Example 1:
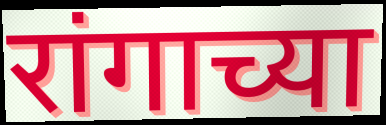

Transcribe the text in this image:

रांगाच्या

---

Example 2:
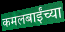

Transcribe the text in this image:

कमलबाईंच्या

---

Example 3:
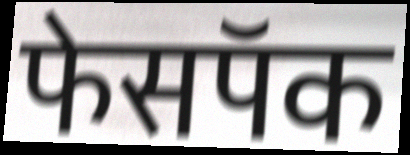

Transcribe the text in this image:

फेसपॅक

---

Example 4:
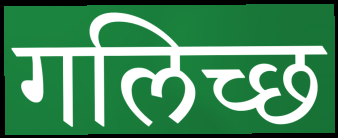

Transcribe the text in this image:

गलिच्छ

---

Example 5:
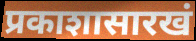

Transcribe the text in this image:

प्रकाशासारखं